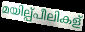
മയില്പ്പീലികള്